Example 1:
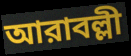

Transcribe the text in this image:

আরাবল্লী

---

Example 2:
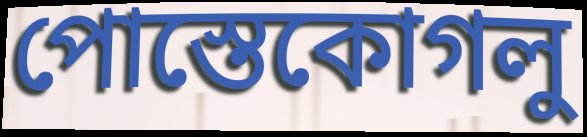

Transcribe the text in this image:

পোস্তেকোগলু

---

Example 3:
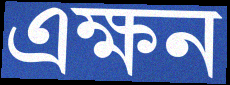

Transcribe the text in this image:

এক্ষন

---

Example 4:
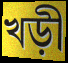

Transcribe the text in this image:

খড়ী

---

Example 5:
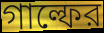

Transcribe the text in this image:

গাল্ফের